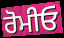
ਰੋਮੀਓ